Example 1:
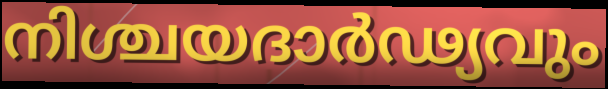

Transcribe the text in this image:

നിശ്ചയദാർഢ്യവും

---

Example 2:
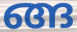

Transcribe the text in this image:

ങ്ങ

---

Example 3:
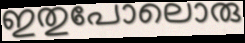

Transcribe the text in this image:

ഇതുപോലൊരു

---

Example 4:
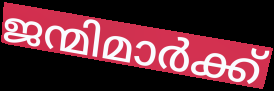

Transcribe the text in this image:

ജന്മിമാർക്ക്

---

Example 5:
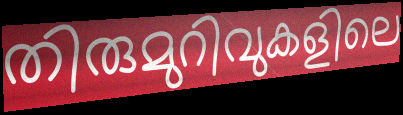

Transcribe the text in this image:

തിരുമുറിവുകളിലെ